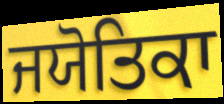
ਜਯੋਤਿਕਾ